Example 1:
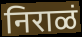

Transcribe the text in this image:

निराळं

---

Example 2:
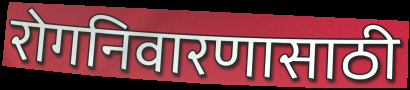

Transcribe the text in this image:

रोगनिवारणासाठी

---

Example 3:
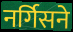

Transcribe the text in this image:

नर्गिसने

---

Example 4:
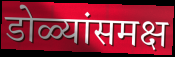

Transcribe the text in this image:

डोळ्यांसमक्ष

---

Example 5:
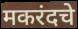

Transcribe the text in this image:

मकरंदचे